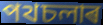
পথচলাৰ